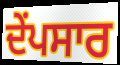
ਦੇਂਪਸਾਰ